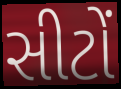
સીટોં